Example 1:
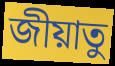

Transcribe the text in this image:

জীয়াতু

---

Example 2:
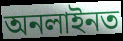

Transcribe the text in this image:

অনলাইনত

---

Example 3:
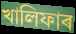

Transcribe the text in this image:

খালিফাৰ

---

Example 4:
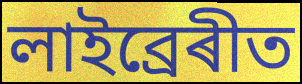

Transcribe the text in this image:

লাইব্ৰেৰীত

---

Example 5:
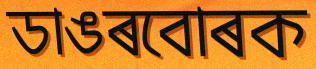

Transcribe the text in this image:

ডাঙৰবোৰক